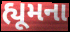
હ્યૂમના